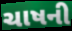
ચાષની